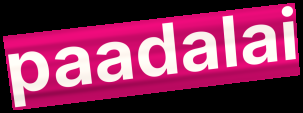
paadalai